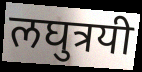
लघुत्रयी